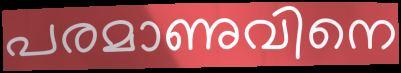
പരമാണുവിനെ